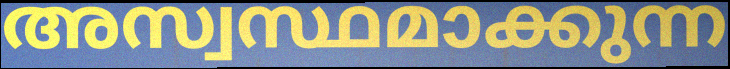
അസ്വസ്ഥമാക്കുന്ന